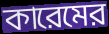
কারেমের